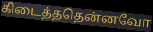
கிடைத்ததென்னவோ